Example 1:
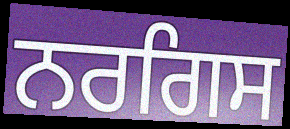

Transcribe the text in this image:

ਨਰਗਿਸ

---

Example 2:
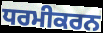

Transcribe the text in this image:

ਧਰਮੀਕਰਨ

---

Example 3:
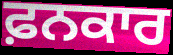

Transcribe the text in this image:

ਫ਼ਨਕਾਰ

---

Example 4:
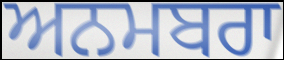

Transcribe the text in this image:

ਅਨਮਬਰਾ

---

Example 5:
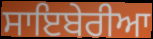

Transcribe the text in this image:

ਸਾਇਬੇਰੀਆ